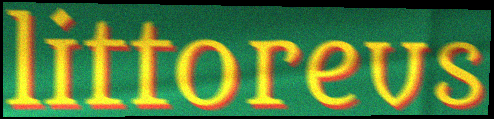
littoreus